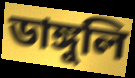
ডাঙ্গুলি